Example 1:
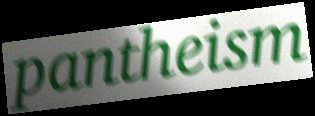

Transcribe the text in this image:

pantheism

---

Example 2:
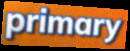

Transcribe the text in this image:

primary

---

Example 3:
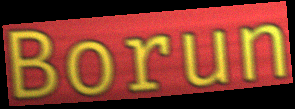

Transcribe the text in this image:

Borun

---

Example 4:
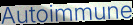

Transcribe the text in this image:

Autoimmune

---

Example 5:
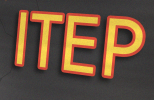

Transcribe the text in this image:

ITEP